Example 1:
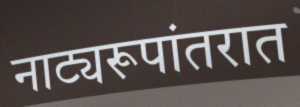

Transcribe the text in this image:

नाट्यरूपांतरात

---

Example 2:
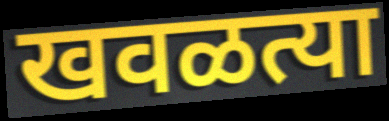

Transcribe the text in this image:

खवळत्या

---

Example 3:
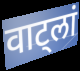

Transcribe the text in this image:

वाट्लां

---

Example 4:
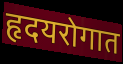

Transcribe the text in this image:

हृदयरोगात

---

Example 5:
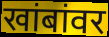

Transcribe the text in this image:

खांबांवर